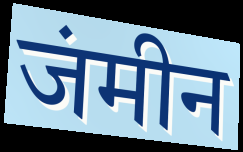
जंमीन